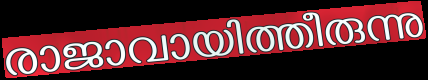
രാജാവായിത്തീരുന്നു